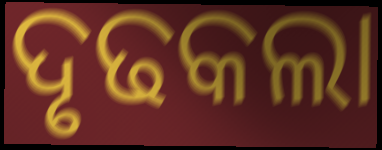
ଦୃଢକଲା